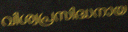
വിശ്വപ്രസിദ്ധനായ